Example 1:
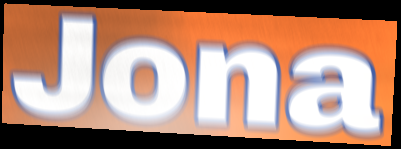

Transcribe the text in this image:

Jona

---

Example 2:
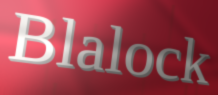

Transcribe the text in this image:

Blalock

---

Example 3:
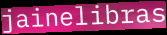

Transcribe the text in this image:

jainelibras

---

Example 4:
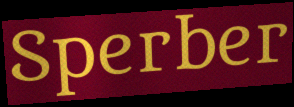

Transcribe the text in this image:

Sperber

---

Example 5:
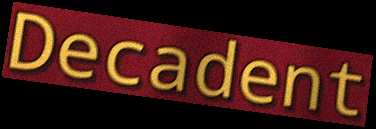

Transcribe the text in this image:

Decadent